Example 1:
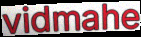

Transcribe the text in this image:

vidmahe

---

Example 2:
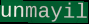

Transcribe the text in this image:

unmayil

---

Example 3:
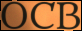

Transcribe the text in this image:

OCB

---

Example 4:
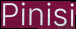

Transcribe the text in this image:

Pinisi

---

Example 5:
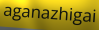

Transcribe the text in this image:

aganazhigai